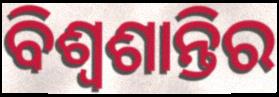
ବିଶ୍ୱଶାନ୍ତିର